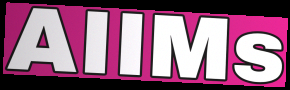
AIIMs